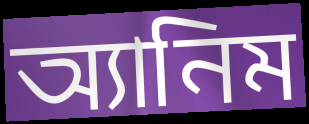
অ্যানিম